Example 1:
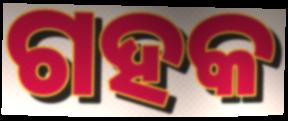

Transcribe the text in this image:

ଗହକ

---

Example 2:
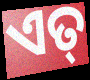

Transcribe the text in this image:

ଏତ୍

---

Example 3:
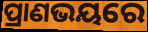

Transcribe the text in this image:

ପ୍ରାଣଭୟରେ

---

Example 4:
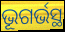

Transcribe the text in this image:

ଭୂଗର୍ଭସ୍ଥ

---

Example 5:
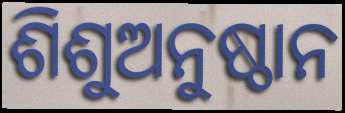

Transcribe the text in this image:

ଶିଶୁଅନୁଷ୍ଠାନ